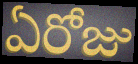
ఏరోజు